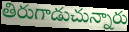
తిరుగాడుచున్నారు